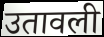
उतावली